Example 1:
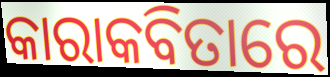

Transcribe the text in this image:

କାରାକବିତାରେ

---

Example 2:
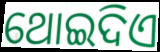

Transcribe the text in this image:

ଥୋଇଦିଏ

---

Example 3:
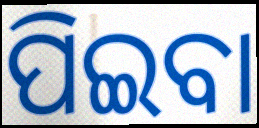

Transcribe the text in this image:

ପିଇବା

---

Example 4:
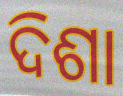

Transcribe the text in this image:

ଦିଶା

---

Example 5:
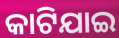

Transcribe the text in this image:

କାଟିଯାଇ